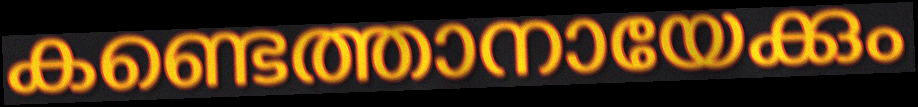
കണ്ടെത്താനായേക്കും